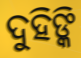
ଦୁହିଙ୍କି